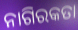
ନାଗିରକତା